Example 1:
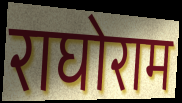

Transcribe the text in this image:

राघोराम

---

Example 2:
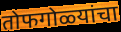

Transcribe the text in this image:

तोफगोळ्यांचा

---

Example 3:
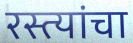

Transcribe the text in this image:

रस्त्यांचा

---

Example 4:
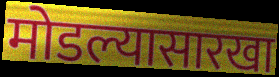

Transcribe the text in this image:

मोडल्यासारखा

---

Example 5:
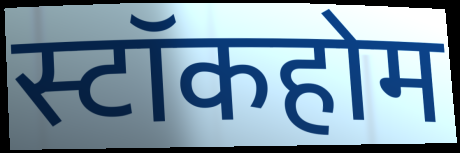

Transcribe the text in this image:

स्टॉकहोम